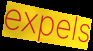
expels